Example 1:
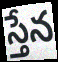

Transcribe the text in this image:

స్తేన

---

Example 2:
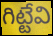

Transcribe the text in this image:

గిట్టేవి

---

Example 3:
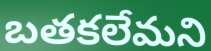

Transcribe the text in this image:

బతకలేమని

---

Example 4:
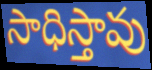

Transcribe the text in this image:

సాధిస్తావు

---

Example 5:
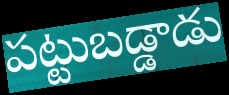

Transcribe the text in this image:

పట్టుబడ్డాడు